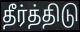
தீர்த்திடு